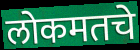
लोकमतचे